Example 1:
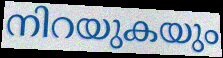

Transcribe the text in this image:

നിറയുകയും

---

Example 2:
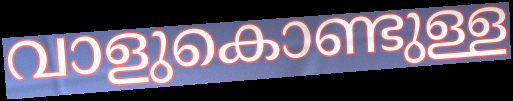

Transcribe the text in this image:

വാളുകൊണ്ടുള്ള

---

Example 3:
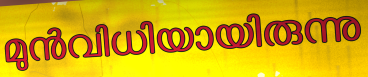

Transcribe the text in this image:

മുൻവിധിയായിരുന്നു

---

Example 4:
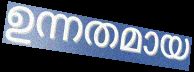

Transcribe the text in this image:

ഉന്നതമായ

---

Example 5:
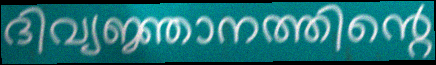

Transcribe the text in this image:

ദിവ്യജ്ഞാനത്തിന്റെ